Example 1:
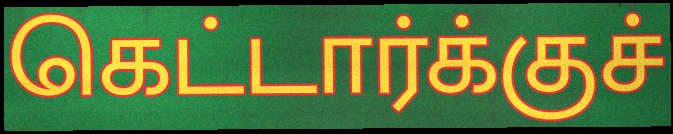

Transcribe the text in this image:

கெட்டார்க்குச்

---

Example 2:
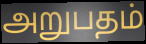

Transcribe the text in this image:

அறுபதம்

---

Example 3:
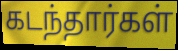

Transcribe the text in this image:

கடந்தார்கள்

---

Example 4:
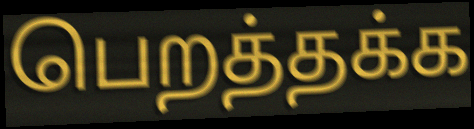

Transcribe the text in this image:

பெறத்தக்க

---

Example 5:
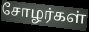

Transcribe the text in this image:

சோழர்கள்